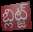
బ్లిట్జ్